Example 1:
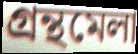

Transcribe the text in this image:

গ্ৰন্থমেলা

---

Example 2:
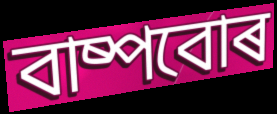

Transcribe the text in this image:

বাষ্পবোৰ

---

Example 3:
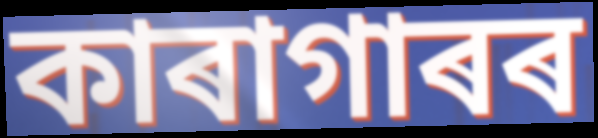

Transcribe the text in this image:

কাৰাগাৰৰ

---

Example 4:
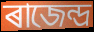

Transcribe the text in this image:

ৰাজেন্দ্ৰ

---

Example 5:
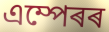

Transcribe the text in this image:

এম্পেৰৰ